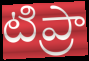
టిప్రా